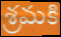
శ్రమకి